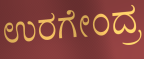
ಉರಗೇಂದ್ರ